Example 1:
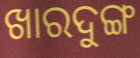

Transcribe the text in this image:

ଖାରଦୁଙ୍ଗ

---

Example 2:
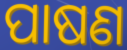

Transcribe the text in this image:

ପାଷଣ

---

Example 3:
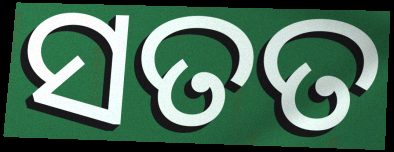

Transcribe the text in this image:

ସତତ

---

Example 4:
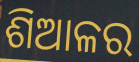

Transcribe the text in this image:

ଶିଆଳର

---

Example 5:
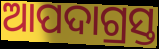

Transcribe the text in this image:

ଆପଦାଗ୍ରସ୍ତ